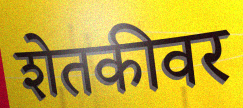
शेतकीवर